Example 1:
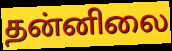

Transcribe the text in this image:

தன்னிலை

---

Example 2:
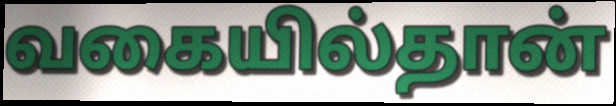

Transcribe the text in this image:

வகையில்தான்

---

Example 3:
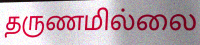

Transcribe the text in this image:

தருணமில்லை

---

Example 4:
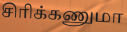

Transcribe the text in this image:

சிரிக்கணுமா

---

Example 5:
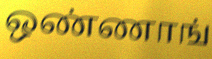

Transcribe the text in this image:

ஒண்ணாங்